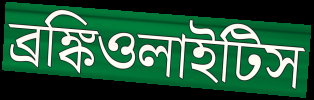
ব্রঙ্কিওলাইটিস